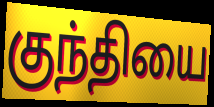
குந்தியை